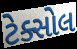
ટેક્સોલ